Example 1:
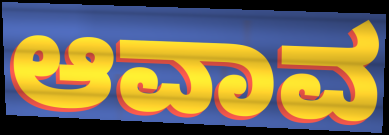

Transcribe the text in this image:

ಆವಾವ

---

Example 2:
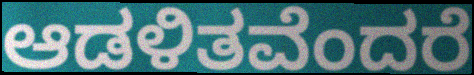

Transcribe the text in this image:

ಆಡಳಿತವೆಂದರೆ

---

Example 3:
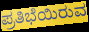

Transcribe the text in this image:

ಪ್ರತಿಭೆಯಿರುವ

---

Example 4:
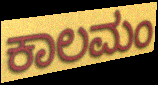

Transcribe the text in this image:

ಕಾಲಮಂ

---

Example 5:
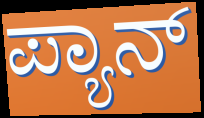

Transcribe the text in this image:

ಪ್ಯಾನ್